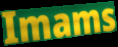
Imams